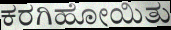
ಕರಗಿಹೋಯಿತು